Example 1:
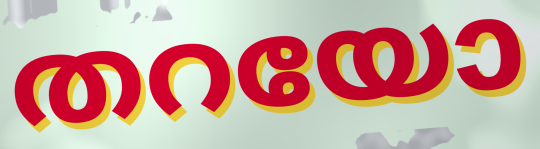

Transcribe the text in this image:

തറയോ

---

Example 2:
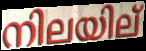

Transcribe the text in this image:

നിലയില്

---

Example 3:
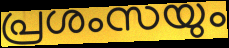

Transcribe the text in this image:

പ്രശംസയും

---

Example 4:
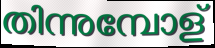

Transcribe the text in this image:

തിന്നുമ്പോള്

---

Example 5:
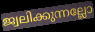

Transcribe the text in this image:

ജ്വലിക്കുന്നല്ലോ